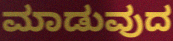
ಮಾಡುವುದ